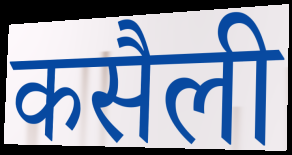
कसैली